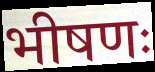
भीषणः